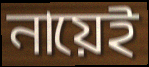
নায়েই